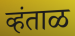
व्हंताळ